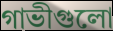
গাভীগুলো